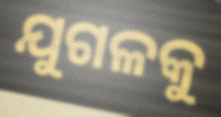
ଯୁଗଳକୁ